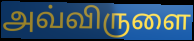
அவ்விருளை